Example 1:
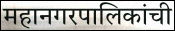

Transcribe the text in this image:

महानगरपालिकांची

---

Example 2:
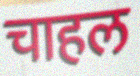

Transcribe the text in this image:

चाहल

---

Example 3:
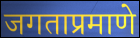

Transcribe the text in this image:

जगताप्रमाणे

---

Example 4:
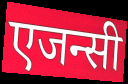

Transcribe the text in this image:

एजन्सी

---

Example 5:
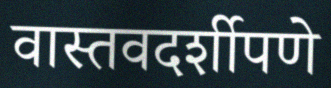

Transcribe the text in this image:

वास्तवदर्शीपणे